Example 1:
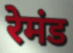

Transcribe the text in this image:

रेमंड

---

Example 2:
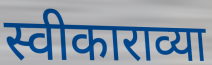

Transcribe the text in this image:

स्वीकाराव्या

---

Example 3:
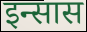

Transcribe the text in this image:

इन्सास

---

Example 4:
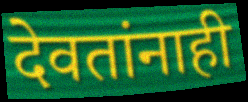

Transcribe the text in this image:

देवतांनाही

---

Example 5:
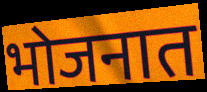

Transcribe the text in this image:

भोजनात